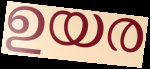
ഉയര